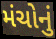
મંચોનું